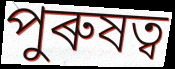
পুৰুষত্ব